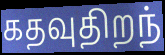
கதவுதிறந்